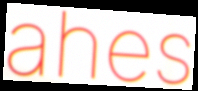
ahes